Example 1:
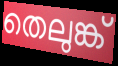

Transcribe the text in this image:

തെലുങ്ക്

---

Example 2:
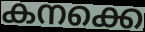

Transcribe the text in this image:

കനക്കെ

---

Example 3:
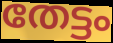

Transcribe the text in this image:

തേട്ടം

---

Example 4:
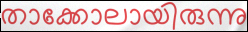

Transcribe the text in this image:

താക്കോലായിരുന്നു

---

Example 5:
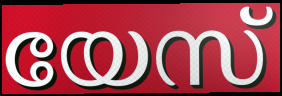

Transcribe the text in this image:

യേസ്